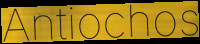
Antiochos